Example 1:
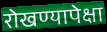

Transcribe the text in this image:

रोखण्यापेक्षा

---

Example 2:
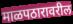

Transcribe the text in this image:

माळपठारावरील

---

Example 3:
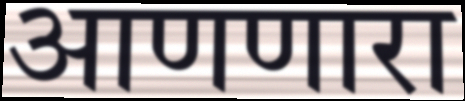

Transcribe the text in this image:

आणणारा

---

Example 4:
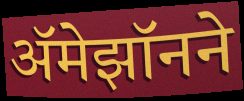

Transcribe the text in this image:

ॲमेझॉनने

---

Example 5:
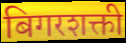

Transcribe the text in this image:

बिगरशक्ती